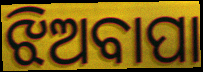
ଝିଅବାପା